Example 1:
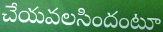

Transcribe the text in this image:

చేయవలసిందంటూ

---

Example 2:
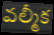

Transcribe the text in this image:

వల్మీక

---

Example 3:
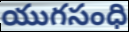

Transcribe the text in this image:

యుగసంధి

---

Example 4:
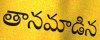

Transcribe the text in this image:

తానమాడిన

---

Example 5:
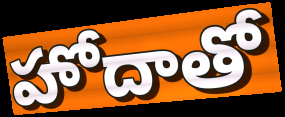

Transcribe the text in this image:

హోదాతో